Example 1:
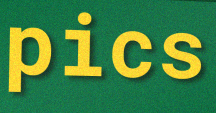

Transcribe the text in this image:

pics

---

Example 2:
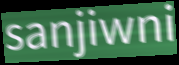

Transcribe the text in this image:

sanjiwni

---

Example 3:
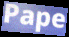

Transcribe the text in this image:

Pape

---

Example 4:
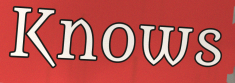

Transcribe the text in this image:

Knows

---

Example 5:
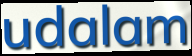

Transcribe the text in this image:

udalam